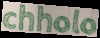
chholo